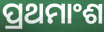
ପ୍ରଥମାଂଶ